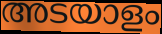
അടയാളം